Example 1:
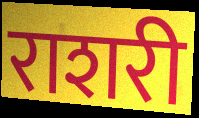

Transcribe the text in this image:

राशरी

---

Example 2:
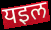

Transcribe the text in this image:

यइल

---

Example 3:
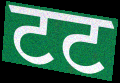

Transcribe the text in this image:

टट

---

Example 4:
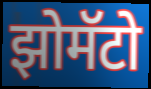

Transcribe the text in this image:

झोमॅटो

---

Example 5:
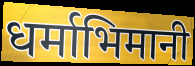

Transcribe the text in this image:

धर्माभिमानी